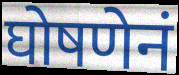
घोषणेनं